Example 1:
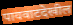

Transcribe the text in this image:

पायवाटदेखील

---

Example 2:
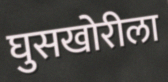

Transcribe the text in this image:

घुसखोरीला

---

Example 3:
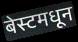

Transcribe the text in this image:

बेस्टमधून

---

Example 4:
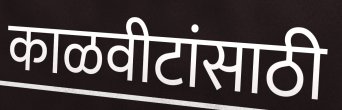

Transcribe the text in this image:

काळवीटांसाठी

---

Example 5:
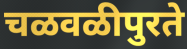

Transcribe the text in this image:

चळवळीपुरते